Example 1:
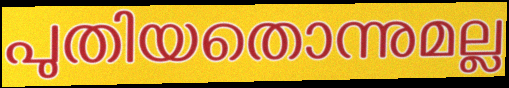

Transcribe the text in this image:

പുതിയതൊന്നുമല്ല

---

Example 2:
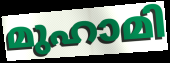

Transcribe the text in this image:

മുഹാമി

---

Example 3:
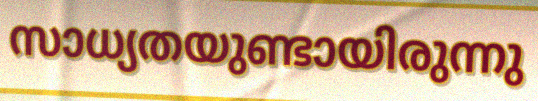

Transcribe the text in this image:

സാധ്യതയുണ്ടായിരുന്നു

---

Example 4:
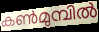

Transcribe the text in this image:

കൺമുമ്പിൽ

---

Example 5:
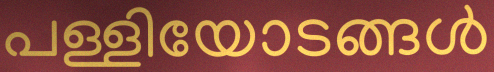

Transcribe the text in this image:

പള്ളിയോടങ്ങൾ